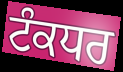
ਟੰਕਧਰ